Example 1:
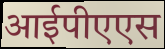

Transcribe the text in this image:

आईपीएएस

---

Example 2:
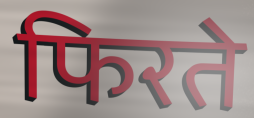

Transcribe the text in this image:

फिरते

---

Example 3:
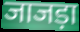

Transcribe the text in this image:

जाजड़ा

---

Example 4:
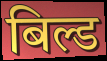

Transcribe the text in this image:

बिल्ड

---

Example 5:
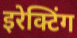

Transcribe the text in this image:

इरेक्टिंग